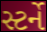
સ્ટર્ને